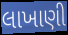
લાખાણી